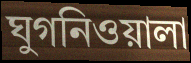
ঘুগনিওয়ালা